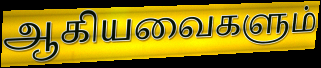
ஆகியவைகளும்